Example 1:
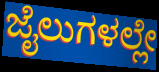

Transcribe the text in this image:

ಜೈಲುಗಳಲ್ಲೇ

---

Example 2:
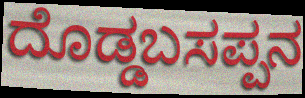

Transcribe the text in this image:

ದೊಡ್ಡಬಸಪ್ಪನ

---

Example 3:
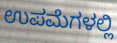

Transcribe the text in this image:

ಉಪಮೆಗಳಲ್ಲಿ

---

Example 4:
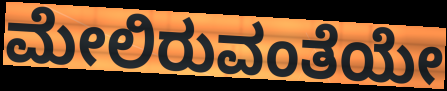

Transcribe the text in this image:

ಮೇಲಿರುವಂತೆಯೇ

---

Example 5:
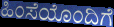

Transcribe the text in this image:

ಹಿಂಸೆಯೊಂದಿಗೆ